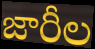
జారీల